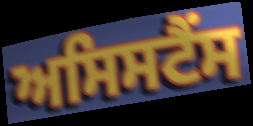
ਅਸਿਸਟੈਂਸ